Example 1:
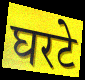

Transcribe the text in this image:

घरटे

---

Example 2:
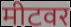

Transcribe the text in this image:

मीटवर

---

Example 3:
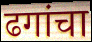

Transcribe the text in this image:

ढगांचा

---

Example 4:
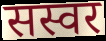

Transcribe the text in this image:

सस्वर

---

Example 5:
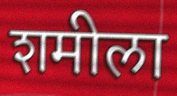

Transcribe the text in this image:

शमीला